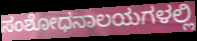
ಸಂಶೋಧನಾಲಯಗಳಲ್ಲಿ